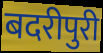
बदरीपुरी